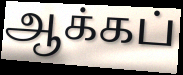
ஆக்கப்